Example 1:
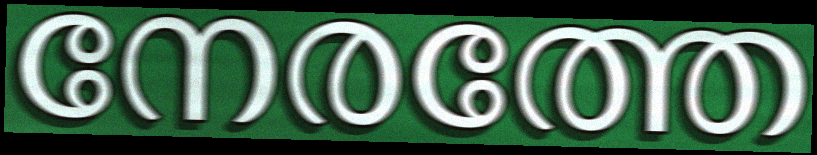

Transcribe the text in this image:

നേരത്തേ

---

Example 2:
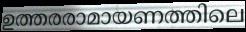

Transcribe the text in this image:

ഉത്തരരാമായണത്തിലെ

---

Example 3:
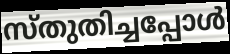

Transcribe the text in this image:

സ്തുതിച്ചപ്പോൾ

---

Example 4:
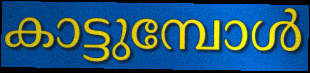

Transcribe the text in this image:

കാട്ടുമ്പോൾ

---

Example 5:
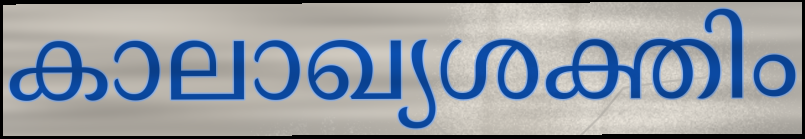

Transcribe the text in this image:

കാലാഖ്യശക്തിം